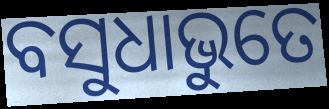
ବସୁଧାଭୁତେ